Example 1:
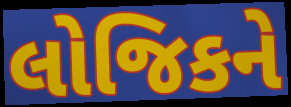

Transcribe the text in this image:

લોજિકને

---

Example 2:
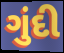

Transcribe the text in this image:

ગુંદી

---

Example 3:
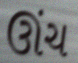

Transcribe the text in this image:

ઊંચ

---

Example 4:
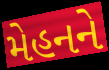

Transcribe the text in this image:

મેહનને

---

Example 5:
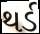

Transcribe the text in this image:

થર્ડ